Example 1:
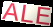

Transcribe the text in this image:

ALE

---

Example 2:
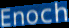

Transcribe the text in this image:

Enoch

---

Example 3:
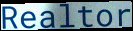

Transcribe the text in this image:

Realtor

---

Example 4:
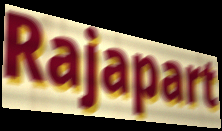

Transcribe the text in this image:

Rajapart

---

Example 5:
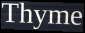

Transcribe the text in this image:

Thyme